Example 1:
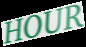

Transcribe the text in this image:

HOUR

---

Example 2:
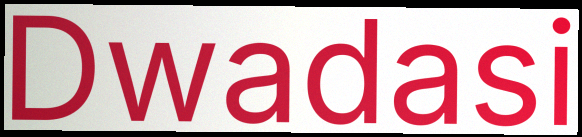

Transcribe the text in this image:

Dwadasi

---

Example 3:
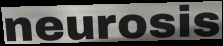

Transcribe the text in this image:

neurosis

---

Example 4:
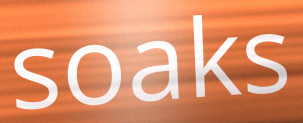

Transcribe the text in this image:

soaks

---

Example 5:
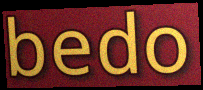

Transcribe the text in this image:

bedo